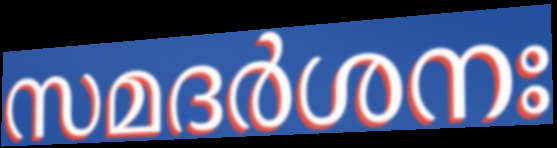
സമദർശനഃ